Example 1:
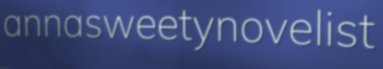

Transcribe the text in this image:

annasweetynovelist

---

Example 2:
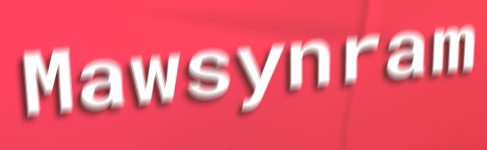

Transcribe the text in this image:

Mawsynram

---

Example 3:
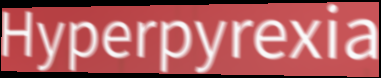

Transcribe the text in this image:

Hyperpyrexia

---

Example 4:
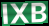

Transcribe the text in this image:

IXB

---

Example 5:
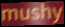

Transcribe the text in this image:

mushy